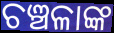
ଚଞ୍ଚଳାଙ୍କ